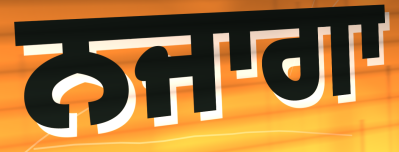
ਨਜਾਗਾ